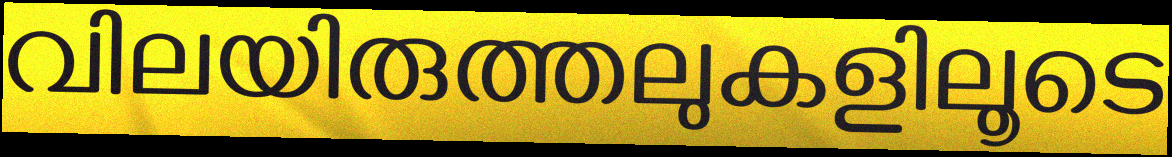
വിലയിരുത്തലുകളിലൂടെ